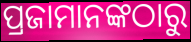
ପ୍ରଜାମାନଙ୍କଠାରୁ